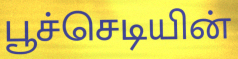
பூச்செடியின்